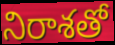
నిరాశతో